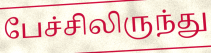
பேச்சிலிருந்து